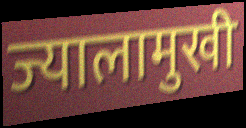
ज्यालामुखी